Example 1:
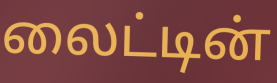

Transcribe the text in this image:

லைட்டின்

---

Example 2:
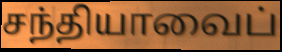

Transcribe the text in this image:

சந்தியாவைப்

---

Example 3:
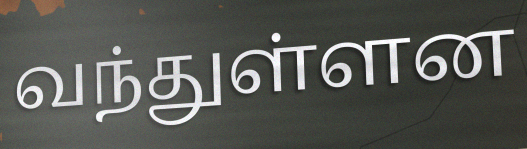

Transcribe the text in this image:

வந்துள்ளன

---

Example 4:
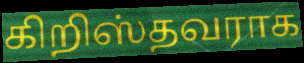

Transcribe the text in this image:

கிறிஸ்தவராக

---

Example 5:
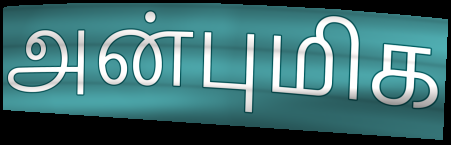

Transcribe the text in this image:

அன்புமிக